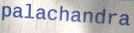
palachandra